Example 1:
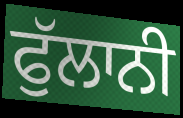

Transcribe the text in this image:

ਫੁੱਲਾਨੀ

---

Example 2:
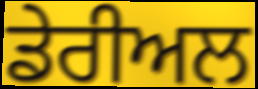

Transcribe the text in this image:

ਡੇਰੀਅਲ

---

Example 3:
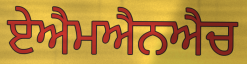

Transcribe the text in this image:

ਏਐਮਐਨਐਚ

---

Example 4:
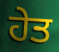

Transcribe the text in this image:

ਹੇਤ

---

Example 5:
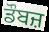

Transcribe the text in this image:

ਡੌਬਜ਼